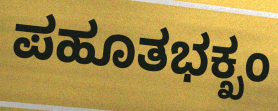
ಪಹೂತಭಕ್ಖಂ